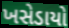
ખસેડાયો